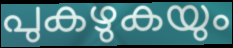
പുകഴുകയും